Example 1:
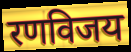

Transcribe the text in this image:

रणविजय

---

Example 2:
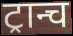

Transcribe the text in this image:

ट्रान्च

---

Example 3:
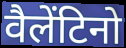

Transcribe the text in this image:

वैलेंटिनो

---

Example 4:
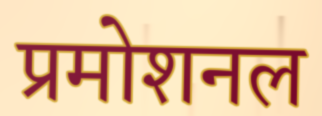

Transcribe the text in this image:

प्रमोशनल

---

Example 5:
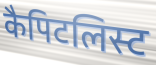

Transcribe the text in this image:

कैपिटलिस्ट